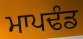
ਮਾਪਢੰਡ